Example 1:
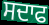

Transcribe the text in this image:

ਸਦਾਫ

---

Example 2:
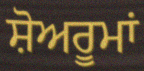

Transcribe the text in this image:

ਸ਼ੋਅਰੂਮਾਂ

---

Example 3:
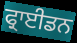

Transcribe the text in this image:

ਫ੍ਰਾਈਡਨ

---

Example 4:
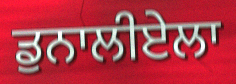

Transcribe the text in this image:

ਡੁਨਾਲੀਏਲਾ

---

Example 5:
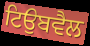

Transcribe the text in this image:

ਟਿਉਬਵੈਲ